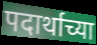
पदार्थाच्या